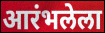
आरंभलेला